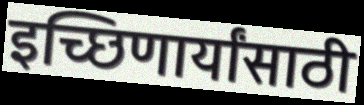
इच्छिणार्यांसाठी